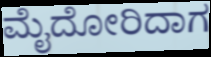
ಮೈದೋರಿದಾಗ